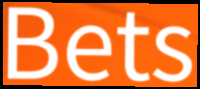
Bets